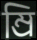
ম্রি